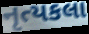
નૃત્યકલા